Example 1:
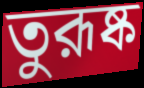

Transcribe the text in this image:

তুরূষ্ক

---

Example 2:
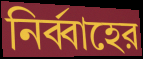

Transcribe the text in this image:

নির্ব্বাহের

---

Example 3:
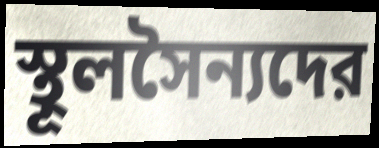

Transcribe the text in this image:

স্থূলসৈন্যদের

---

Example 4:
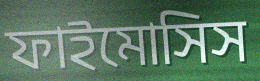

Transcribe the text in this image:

ফাইমোসিস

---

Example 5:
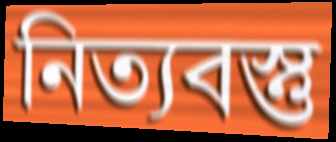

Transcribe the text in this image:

নিত্যবস্তু